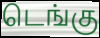
டெங்கு